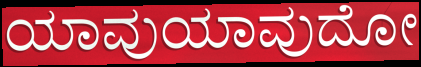
ಯಾವುಯಾವುದೋ